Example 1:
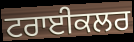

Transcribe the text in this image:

ਟਰਾਈਕਲਰ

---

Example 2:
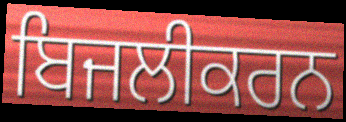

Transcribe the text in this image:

ਬਿਜਲੀਕਰਨ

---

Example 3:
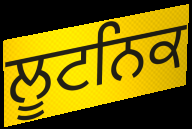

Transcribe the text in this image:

ਲੂਟਨਿਕ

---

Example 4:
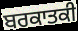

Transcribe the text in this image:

ਬਰਕਾਤਕੀ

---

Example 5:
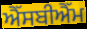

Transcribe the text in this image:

ਐੱਸਬੀਐੱਮ